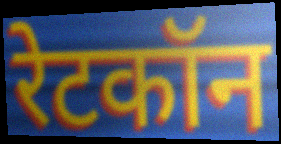
रेटकॉन